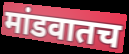
मांडवातच